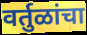
वर्तुळांचा